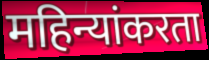
महिन्यांकरता